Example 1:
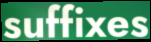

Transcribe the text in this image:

suffixes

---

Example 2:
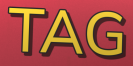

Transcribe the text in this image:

TAG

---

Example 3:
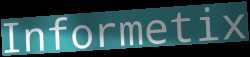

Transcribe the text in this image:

Informetix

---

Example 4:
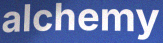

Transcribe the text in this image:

alchemy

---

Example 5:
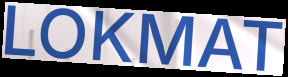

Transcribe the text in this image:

LOKMAT